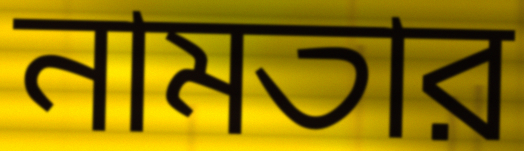
নামতার